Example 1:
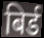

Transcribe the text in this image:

बिर्ड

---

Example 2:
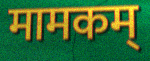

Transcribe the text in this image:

मामकम्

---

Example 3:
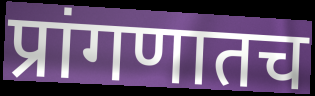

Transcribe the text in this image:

प्रांगणातच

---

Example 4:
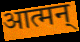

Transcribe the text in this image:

आत्मन्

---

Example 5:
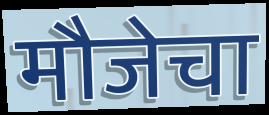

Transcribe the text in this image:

मौजेचा